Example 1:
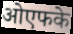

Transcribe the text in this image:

ओएफके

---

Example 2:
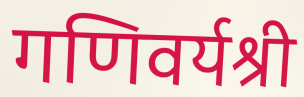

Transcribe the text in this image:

गणिवर्यश्री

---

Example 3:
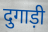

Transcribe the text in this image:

दुगाड़ी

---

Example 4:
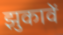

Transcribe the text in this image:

झुकावें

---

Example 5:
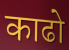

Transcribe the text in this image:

काढो